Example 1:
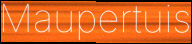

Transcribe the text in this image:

Maupertuis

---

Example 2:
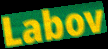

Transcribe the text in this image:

Labov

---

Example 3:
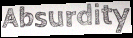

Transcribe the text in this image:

Absurdity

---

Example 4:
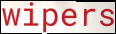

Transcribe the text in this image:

wipers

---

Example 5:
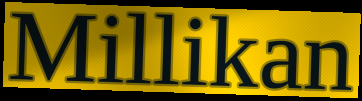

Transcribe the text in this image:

Millikan